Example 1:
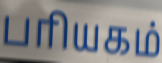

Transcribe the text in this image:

பரியகம்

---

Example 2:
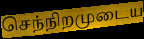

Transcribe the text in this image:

செந்நிறமுடைய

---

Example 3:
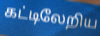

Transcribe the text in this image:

கட்டிலேறிய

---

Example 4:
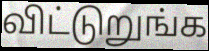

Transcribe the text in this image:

விட்டுறுங்க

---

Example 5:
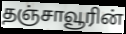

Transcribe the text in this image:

தஞ்சாவூரின்